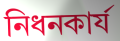
নিধনকার্য